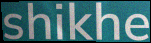
shikhe